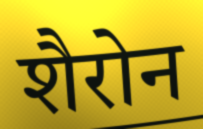
शैरोन